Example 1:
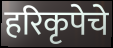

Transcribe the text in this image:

हरिकृपेचे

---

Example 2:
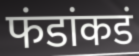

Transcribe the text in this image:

फंडांकडं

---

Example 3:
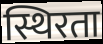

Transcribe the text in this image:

स्थिरता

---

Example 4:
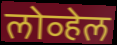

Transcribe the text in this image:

लोव्हेल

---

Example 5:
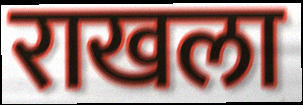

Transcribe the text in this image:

राखला